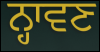
ਨ੍ਹਾਵਣ